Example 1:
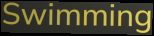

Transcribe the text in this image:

Swimming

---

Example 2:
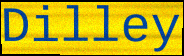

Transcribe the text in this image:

Dilley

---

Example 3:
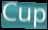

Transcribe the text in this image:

Cup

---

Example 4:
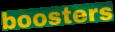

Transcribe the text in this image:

boosters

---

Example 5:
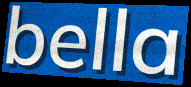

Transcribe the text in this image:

bella